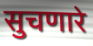
सुचणारे